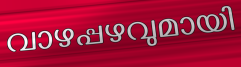
വാഴപ്പഴവുമായി